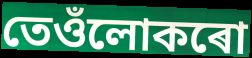
তেওঁলোকৰো